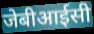
जेबीआईसी